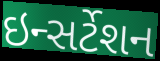
ઇન્સર્ટેશન